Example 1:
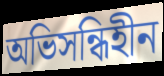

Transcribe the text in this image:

অভিসন্ধিহীন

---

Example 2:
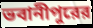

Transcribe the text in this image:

ভবানীপুরের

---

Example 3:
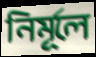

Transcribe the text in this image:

নির্মূলে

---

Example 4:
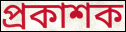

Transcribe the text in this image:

প্রকাশক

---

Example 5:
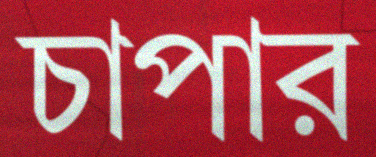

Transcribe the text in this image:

চাপার